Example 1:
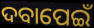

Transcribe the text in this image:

ଦବାପେଇଁ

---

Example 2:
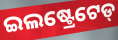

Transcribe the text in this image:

ଇଲଷ୍ଟ୍ରେଟେଡ୍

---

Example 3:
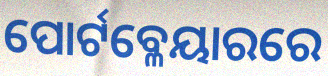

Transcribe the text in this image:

ପୋର୍ଟବ୍ଳେୟାରରେ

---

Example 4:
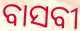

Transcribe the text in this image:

ବାସବୀ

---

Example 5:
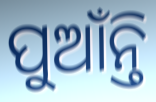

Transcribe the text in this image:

ପୁଆଁନ୍ତି